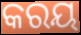
କରୟ